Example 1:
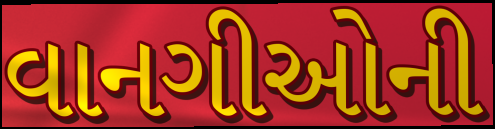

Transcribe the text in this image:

વાનગીઓની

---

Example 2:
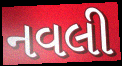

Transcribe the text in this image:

નવલી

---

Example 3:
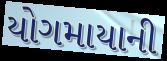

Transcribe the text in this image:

યોગમાયાની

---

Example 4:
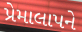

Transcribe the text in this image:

પ્રેમાલાપને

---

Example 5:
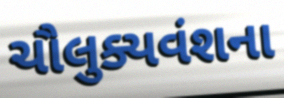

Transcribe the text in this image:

ચૌલુક્યવંશના